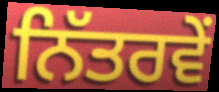
ਨਿੱਤਰਵੇਂ